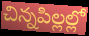
చిన్నపిల్లల్లో